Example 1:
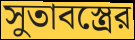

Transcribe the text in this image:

সুতাবস্ত্রের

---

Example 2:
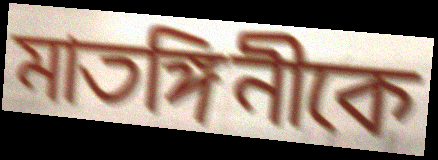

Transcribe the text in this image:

মাতঙ্গিনীকে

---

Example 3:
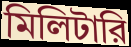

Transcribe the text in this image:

মিলিটারি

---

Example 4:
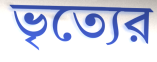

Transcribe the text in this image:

ভৃত্যের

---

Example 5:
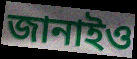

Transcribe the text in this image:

জানাইও